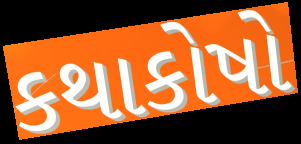
કથાકોષો